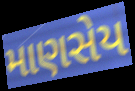
માણસેય